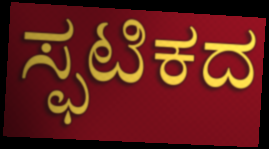
ಸ್ಫಟಿಕದ